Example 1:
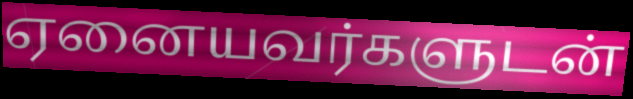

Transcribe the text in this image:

ஏனையவர்களுடன்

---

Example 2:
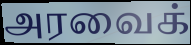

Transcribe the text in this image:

அரவைக்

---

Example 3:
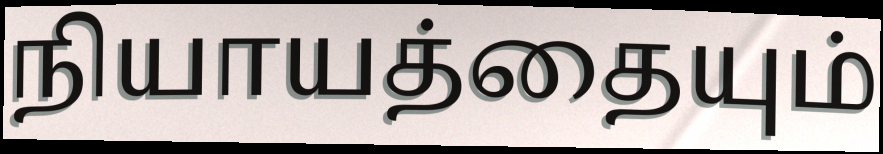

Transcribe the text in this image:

நியாயத்தையும்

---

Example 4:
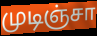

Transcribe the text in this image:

முடிஞ்சா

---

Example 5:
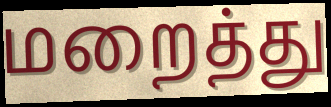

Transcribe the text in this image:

மறைத்து